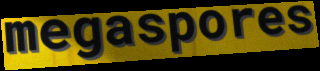
megaspores